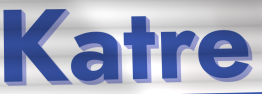
Katre